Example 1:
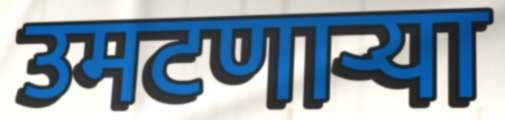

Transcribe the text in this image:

उमटणाऱ्या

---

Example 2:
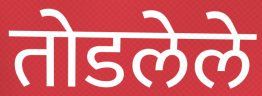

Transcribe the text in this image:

तोडलेले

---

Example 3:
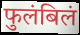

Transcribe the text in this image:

फुलंबिलं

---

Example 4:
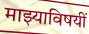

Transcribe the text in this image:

माझ्याविषयीं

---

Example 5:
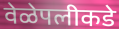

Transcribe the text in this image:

वेळेपलीकडे